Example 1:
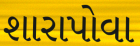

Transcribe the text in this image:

શારાપોવા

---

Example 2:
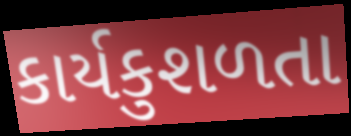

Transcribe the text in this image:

કાર્યકુશળતા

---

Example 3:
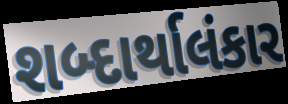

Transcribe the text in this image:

શબ્દાર્થાલંકાર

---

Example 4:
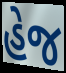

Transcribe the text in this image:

હેજ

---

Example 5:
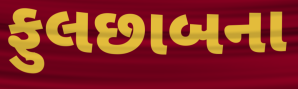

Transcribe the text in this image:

ફુલછાબના